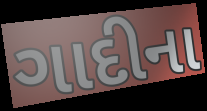
ગાદીના